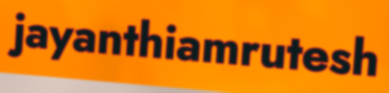
jayanthiamrutesh